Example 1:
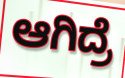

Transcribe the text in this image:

ಆಗಿದ್ರೆ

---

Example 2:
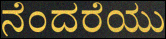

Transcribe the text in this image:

ನೆಂದರೆಯು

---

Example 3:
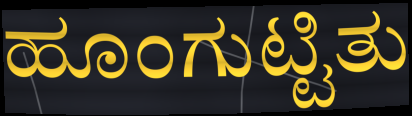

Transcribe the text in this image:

ಹೂಂಗುಟ್ಟಿತು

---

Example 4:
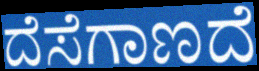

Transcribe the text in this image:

ದೆಸೆಗಾಣದೆ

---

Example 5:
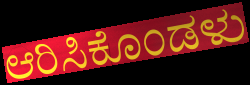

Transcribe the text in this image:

ಆರಿಸಿಕೊಂಡಳು